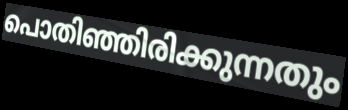
പൊതിഞ്ഞിരിക്കുന്നതും